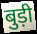
बुड़ी